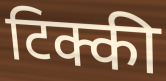
टिक्की